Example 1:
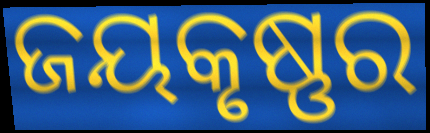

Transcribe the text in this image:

ଜୟକୃଷ୍ଣର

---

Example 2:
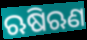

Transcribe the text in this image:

ଋଷିଋଣ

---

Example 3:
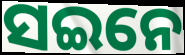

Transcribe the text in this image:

ସଇନେ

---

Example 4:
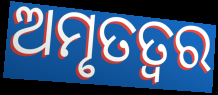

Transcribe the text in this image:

ଅମୃତତ୍ଵର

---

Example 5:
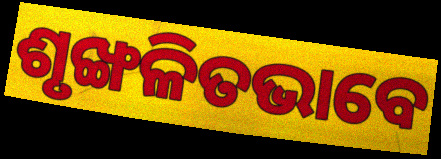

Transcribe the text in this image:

ଶୃଙ୍ଖଳିତଭାବେ